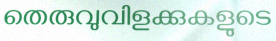
തെരുവുവിളക്കുകളുടെ